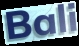
Bali